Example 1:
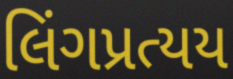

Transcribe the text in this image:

લિંગપ્રત્યય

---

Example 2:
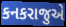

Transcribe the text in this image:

કનકરાજુએ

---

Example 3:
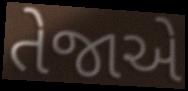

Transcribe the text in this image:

તેજાએ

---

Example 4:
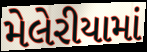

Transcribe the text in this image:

મેલેરીયામાં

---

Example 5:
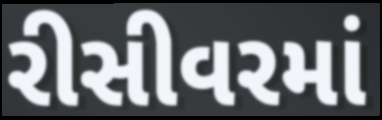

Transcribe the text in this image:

રીસીવરમાં